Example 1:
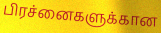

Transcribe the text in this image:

பிரச்னைகளுக்கான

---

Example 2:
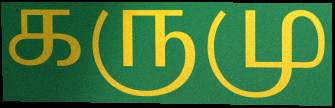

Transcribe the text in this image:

கருமு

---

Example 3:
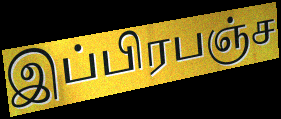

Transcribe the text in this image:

இப்பிரபஞ்ச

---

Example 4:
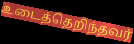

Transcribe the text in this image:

உடைத்தெறிந்தவர்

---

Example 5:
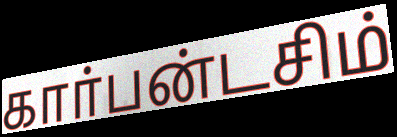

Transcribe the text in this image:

கார்பன்டசிம்